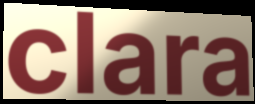
clara